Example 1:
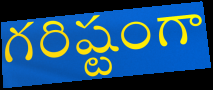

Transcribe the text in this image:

గరిష్టంగా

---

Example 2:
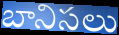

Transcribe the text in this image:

బానిసలు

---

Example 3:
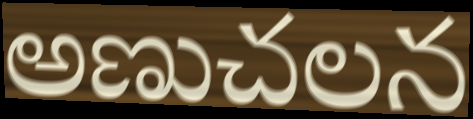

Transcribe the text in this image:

అణుచలన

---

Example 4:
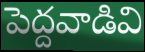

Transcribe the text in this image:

పెద్దవాడివి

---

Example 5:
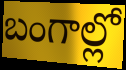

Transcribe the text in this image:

బంగాల్లో